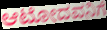
ಆಟೋದವನಿಗೆ